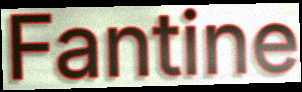
Fantine